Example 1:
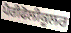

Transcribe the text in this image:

ਪੈਰੀਫੋਲੀਕੂਲਰ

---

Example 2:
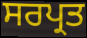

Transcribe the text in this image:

ਸਰਪ੍ਰਤ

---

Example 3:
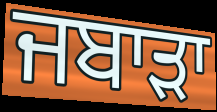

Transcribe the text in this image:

ਜਬਾੜਾ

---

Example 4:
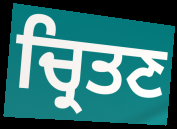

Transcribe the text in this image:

ਚ੍ਰਿਤਣ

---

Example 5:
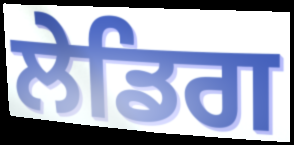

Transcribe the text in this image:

ਲੇਡਿਗ